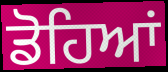
ਡੋਹਿਆਂ